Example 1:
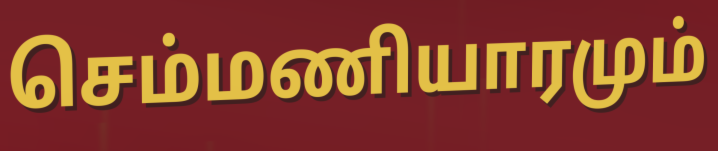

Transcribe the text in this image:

செம்மணியாரமும்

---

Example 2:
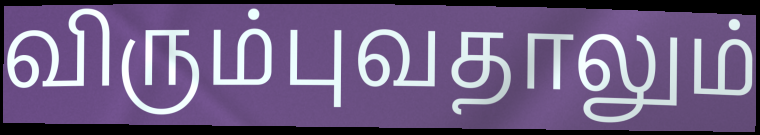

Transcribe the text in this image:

விரும்புவதாலும்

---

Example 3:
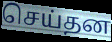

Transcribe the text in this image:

செய்தன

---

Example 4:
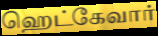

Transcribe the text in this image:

ஹெட்கேவார்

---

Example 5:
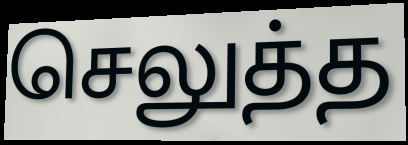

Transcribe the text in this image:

செலுத்த